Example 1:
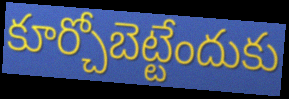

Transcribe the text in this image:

కూర్చోబెట్టేందుకు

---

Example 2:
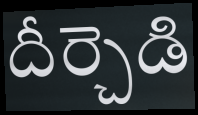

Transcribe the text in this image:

దీర్చెడి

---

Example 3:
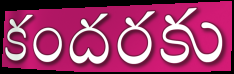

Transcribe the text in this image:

కందరకు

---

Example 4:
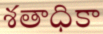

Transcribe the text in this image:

శతాధికా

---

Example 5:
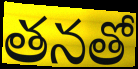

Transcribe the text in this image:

తనతో